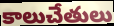
కాలుచేతులు